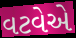
વટવેએ